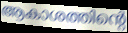
ആകാശത്തിന്റെ